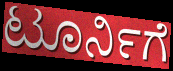
ಟೂರ್ನಿಗೆ